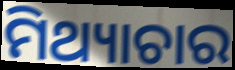
ମିଥ୍ୟାଚାର